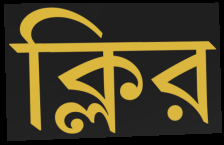
ক্লির